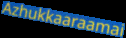
Azhukkaaraamai